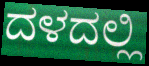
ದಳದಲ್ಲಿ